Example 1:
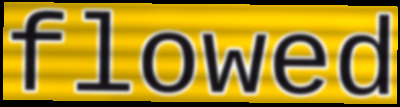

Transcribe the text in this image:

flowed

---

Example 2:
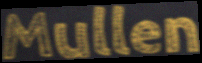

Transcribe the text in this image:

Mullen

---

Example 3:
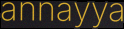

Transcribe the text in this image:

annayya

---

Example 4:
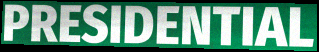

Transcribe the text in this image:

PRESIDENTIAL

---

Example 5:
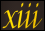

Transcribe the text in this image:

xiii